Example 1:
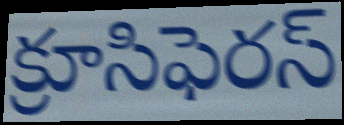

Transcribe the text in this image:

క్రూసిఫెరస్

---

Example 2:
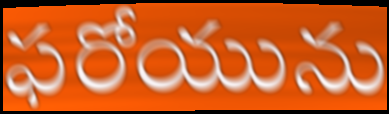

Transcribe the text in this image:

ఫరోయును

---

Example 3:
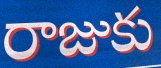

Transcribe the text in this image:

రాజుకు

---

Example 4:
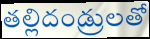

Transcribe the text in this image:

తల్లిదండ్రులతో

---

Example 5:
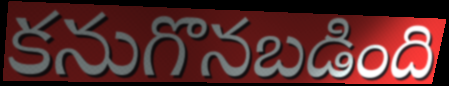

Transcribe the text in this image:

కనుగొనబడింది